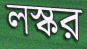
লস্কর